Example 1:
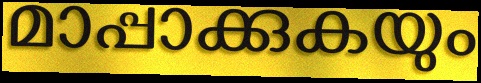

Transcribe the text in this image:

മാപ്പാക്കുകയും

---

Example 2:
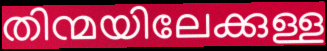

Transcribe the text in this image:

തിന്മയിലേക്കുള്ള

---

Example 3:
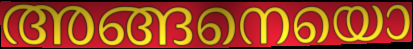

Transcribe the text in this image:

അങ്ങനെയൊ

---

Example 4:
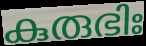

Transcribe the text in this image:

കുരുഭിഃ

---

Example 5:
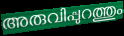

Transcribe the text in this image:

അരുവിപ്പുറത്തും